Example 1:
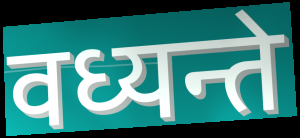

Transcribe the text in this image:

वध्यन्ते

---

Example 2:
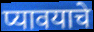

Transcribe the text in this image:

प्यावयाचे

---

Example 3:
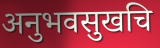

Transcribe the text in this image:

अनुभवसुखचि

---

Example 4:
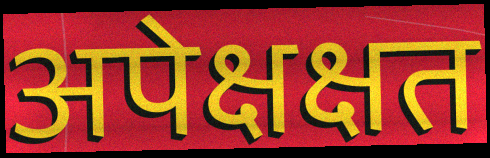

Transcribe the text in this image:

अपेक्षक्षत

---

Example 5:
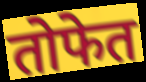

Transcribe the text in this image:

तोफेत